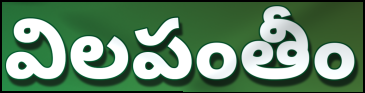
విలపంతీం